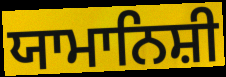
ਯਾਮਾਨਿਸ਼ੀ